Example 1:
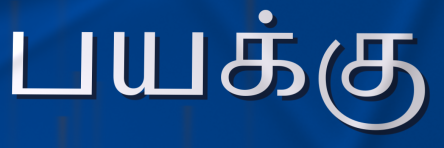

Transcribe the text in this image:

பயக்கு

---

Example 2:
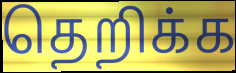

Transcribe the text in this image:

தெறிக்க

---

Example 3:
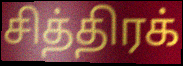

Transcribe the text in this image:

சித்திரக்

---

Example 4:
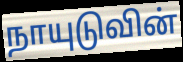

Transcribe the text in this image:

நாயுடுவின்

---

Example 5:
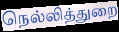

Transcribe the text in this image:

நெல்லித்துறை